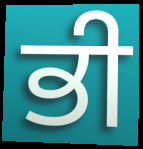
ਭੀ